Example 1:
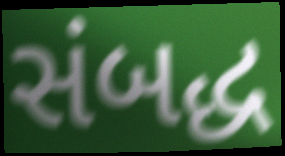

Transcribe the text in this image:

સંબદ્ધ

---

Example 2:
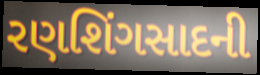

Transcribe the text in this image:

રણશિંગસાદની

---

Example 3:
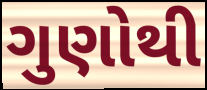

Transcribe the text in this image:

ગુણોથી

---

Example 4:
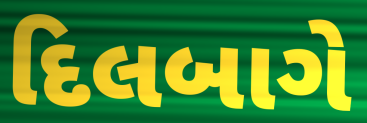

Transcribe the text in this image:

દિલબાગે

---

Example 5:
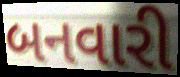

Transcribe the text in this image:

બનવારી